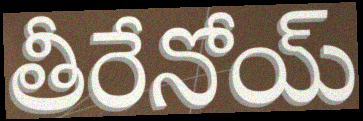
తీరేనోయ్